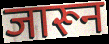
जारून